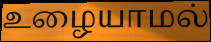
உழையாமல்